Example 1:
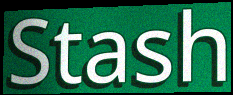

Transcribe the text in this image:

Stash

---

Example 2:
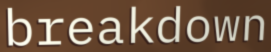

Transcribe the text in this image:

breakdown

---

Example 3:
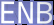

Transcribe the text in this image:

ENB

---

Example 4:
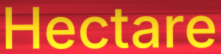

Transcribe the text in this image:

Hectare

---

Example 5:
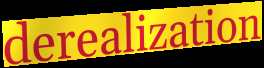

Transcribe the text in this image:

derealization